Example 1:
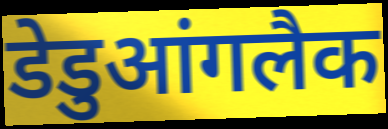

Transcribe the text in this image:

डेडुआंगलैक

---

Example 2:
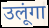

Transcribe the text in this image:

उलूंगा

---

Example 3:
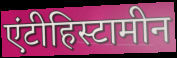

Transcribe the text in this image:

एंटीहिस्टामीन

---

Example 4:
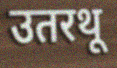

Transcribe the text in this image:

उतरथू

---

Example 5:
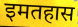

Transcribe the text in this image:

इमतहास